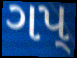
ગપ્